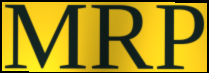
MRP